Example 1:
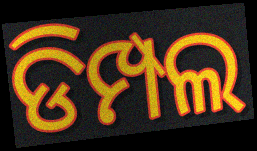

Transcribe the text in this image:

ଡିମ୍ପଲ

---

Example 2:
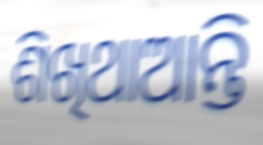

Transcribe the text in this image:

ଶିଖିଥାଆନ୍ତି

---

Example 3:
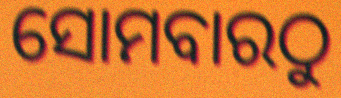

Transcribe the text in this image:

ସୋମବାରଠୁ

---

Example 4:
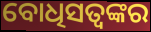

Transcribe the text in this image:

ବୋଧିସତ୍ୱଙ୍କର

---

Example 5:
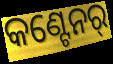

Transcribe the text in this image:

କଣ୍ଟେନର୍